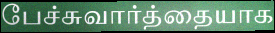
பேச்சுவார்த்தையாக